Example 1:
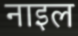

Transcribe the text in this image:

नाइल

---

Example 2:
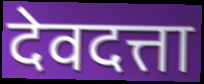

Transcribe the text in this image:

देवदत्ता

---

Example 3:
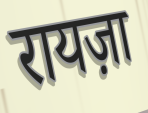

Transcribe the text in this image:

रायज़ा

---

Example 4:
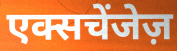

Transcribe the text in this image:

एक्सचेंजेज़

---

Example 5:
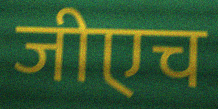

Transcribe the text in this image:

जीएच